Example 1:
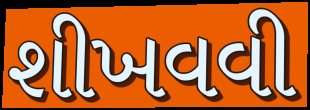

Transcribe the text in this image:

શીખવવી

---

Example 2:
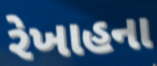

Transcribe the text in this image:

રેખાહના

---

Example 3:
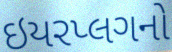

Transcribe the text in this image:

ઇયરપ્લગનો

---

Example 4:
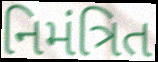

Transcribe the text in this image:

નિમંત્રિત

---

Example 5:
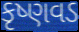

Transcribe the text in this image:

કૃષ્ણવડ